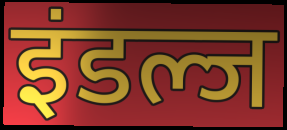
इंडल्ज